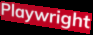
Playwright